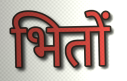
भितों